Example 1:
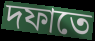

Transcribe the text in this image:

দফাতে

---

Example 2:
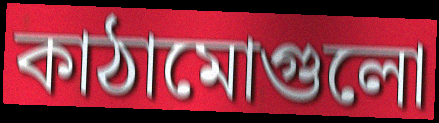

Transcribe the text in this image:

কাঠামোগুলো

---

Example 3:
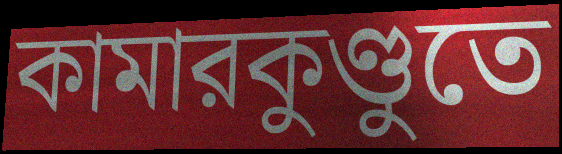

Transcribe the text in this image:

কামারকুণ্ডুতে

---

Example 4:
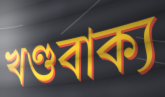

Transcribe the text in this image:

খণ্ডবাক্য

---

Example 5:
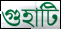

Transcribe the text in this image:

গুহাটি